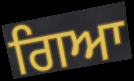
ਗਿਆ